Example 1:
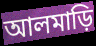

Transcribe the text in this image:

আলমাড়ি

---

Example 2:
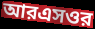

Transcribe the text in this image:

আরএসওর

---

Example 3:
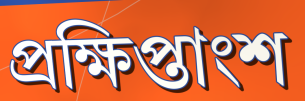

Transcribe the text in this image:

প্রক্ষিপ্তাংশ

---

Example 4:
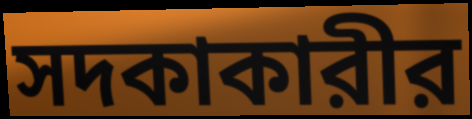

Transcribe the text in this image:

সদকাকারীর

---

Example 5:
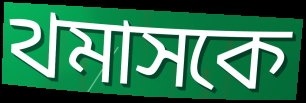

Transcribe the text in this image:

থমাসকে